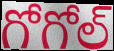
గోగోల్